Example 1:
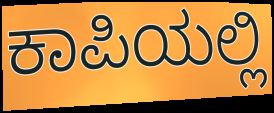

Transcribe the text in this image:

ಕಾಪಿಯಲ್ಲಿ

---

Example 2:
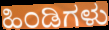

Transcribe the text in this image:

ಹಿಂಡಿಗಳು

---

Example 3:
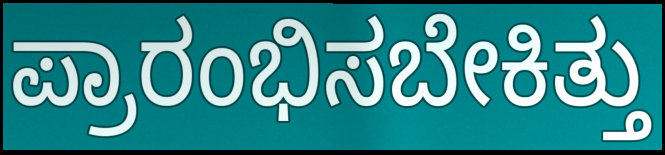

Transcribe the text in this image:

ಪ್ರಾರಂಭಿಸಬೇಕಿತ್ತು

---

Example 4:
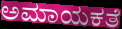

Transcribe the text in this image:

ಅಮಾಯಕತೆ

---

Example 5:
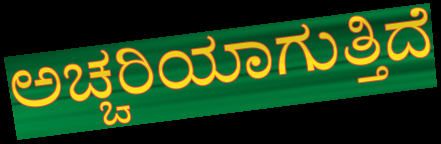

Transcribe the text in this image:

ಅಚ್ಚರಿಯಾಗುತ್ತಿದೆ